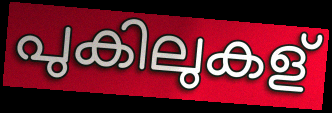
പുകിലുകള്